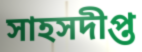
সাহসদীপ্ত